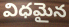
విధమైన